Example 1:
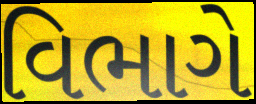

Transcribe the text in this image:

વિભાગે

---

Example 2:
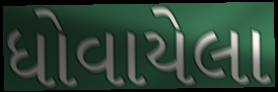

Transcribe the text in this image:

ધોવાયેલા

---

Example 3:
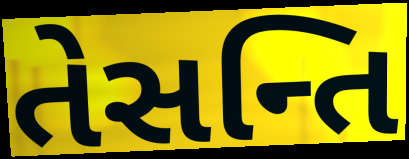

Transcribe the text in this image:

તેસન્તિ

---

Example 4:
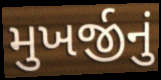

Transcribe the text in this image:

મુખર્જીનું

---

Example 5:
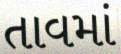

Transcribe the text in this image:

તાવમાં